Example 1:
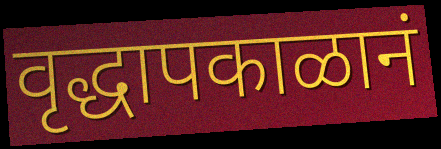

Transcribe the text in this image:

वृद्धापकाळानं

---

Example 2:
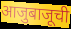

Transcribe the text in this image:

आजुबाजूची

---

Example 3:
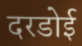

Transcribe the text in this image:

दरडोई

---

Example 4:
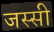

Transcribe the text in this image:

जस्सी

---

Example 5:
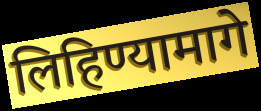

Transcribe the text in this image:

लिहिण्यामागे